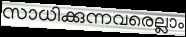
സാധിക്കുന്നവരെല്ലാം